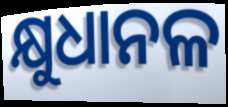
କ୍ଷୁଧାନଳ